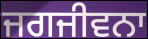
ਜਗਜੀਵਨਾ